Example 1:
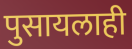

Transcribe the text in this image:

पुसायलाही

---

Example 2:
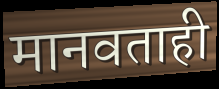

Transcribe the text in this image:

मानवताही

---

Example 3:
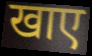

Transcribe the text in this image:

खाए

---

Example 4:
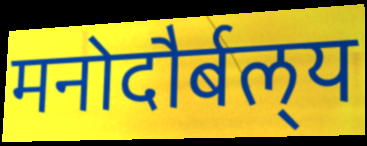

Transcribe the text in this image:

मनोदौर्बल्य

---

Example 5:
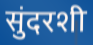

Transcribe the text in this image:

सुंदरशी